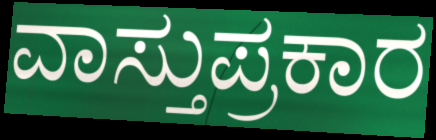
ವಾಸ್ತುಪ್ರಕಾರ